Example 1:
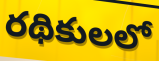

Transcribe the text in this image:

రథికులలో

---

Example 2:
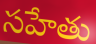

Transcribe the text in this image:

సహేతు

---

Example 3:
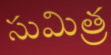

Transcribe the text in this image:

సుమిత్ర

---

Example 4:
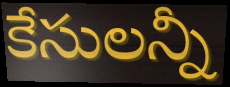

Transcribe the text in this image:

కేసులన్నీ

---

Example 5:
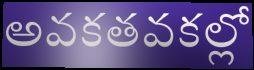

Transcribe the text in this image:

అవకతవకల్లో